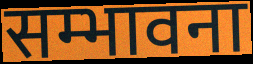
सम्भावना